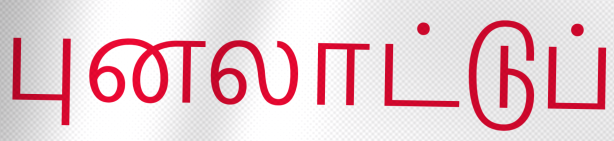
புனலாட்டுப்